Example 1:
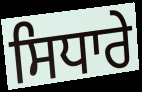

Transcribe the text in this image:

ਸਿਧਾਰੇ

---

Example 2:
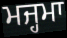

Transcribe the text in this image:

ਮਜ੍ਹਮਾ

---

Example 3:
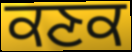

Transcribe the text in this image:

ਕਣਕ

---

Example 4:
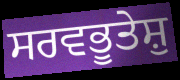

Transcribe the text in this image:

ਸਰਵਭੂਤੇਸ਼ੁ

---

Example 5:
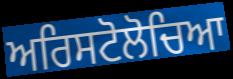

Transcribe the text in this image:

ਅਰਿਸਟੋਲੋਚਿਆ